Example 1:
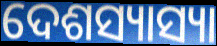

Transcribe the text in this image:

ଦେଶସ୍ୟାସ୍ୟା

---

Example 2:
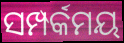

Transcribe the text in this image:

ସମ୍ପର୍କମୟ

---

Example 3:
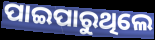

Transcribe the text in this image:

ପାଇପାରୁଥିଲେ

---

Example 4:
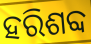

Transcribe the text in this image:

ହରିଶବ୍ଦ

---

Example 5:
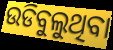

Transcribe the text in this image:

ଉଡିବୁଲୁଥିବା